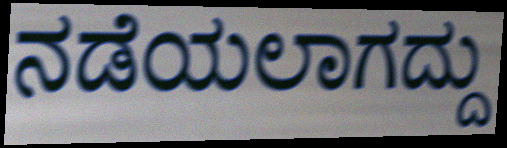
ನಡೆಯಲಾಗದ್ದು